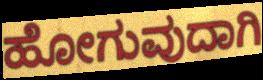
ಹೋಗುವುದಾಗಿ